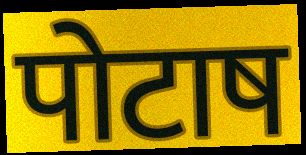
पोटाष